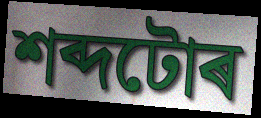
শব্দটোৰ